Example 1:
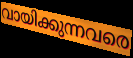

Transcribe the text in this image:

വായിക്കുന്നവരെ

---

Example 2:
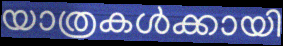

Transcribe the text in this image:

യാത്രകൾക്കായി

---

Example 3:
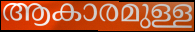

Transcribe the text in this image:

ആകാരമുള്ള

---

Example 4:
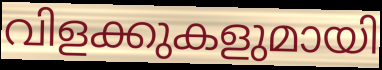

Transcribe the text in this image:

വിളക്കുകളുമായി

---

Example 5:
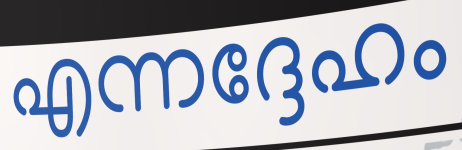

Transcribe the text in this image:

എന്നദ്ദേഹം